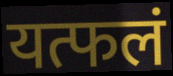
यत्फलं